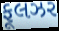
ફૂલઝર